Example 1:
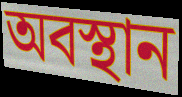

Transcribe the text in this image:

অবস্থান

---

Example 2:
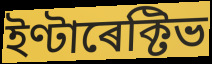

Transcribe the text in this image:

ইণ্টাৰেক্টিভ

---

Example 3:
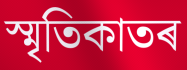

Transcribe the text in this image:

স্মৃতিকাতৰ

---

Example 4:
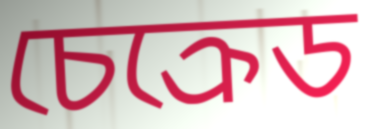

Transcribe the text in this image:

চেক্ৰেড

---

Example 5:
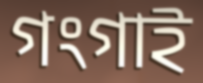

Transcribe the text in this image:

গংগাই